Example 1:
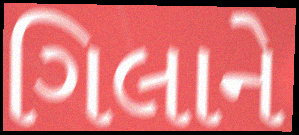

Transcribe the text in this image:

ગિલાને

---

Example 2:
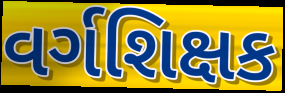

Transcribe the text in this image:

વર્ગશિક્ષક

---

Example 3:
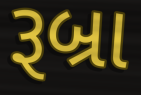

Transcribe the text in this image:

રૂબ્રા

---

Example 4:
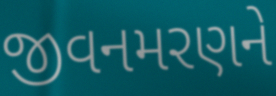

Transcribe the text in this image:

જીવનમરણને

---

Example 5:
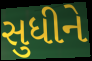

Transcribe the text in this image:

સુધીને